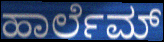
ಹಾರ್ಲೆಮ್